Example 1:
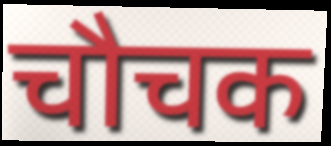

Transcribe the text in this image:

चौचक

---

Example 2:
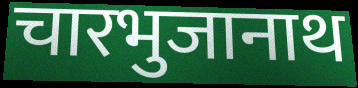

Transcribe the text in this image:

चारभुजानाथ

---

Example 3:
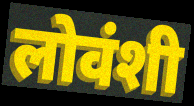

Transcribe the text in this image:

लोवंशी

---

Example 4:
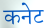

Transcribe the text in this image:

कनेट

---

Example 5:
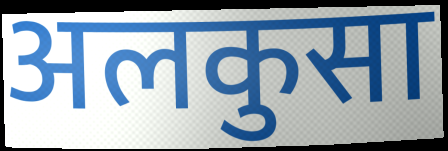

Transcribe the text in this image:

अलकुसा